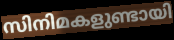
സിനിമകളുണ്ടായി